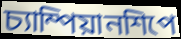
চ্যাম্পিয়ানশিপে